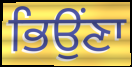
ਭਿਉਂਣਾ